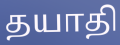
தயாதி